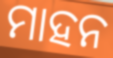
ମାହନ